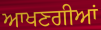
ਆਖਣਗੀਆਂ